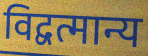
विद्वत्मान्य